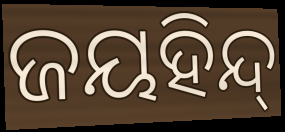
ଜୟହିନ୍ଦ୍